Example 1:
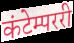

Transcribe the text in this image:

कंटेम्पररी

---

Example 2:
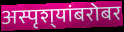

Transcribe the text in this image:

अस्पृश्यांबरोबर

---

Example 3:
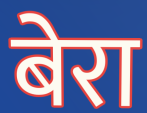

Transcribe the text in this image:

बेरा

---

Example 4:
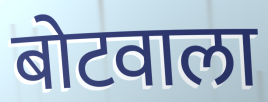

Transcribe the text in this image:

बोटवाला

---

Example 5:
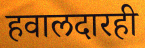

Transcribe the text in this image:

हवालदारही